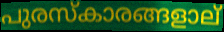
പുരസ്കാരങ്ങളാല്